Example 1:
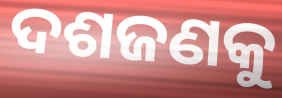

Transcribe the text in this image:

ଦଶଜଣକୁ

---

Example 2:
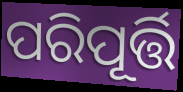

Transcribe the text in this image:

ପରିପୂର୍ତ୍ତି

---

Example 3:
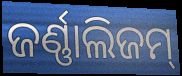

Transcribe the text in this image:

ଜର୍ଣ୍ଣାଲିଜମ୍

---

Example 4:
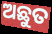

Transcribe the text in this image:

ଅଛୁତ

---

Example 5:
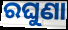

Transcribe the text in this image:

ରଘୁଣା